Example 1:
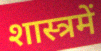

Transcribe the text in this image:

शास्त्रमें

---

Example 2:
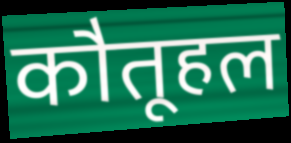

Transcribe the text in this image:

कौतूहल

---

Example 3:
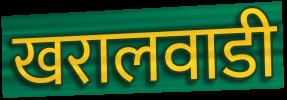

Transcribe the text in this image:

खरालवाडी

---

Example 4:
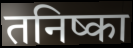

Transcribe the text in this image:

तनिष्का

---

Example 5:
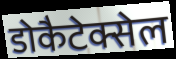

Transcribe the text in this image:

डोकैटेक्सेल